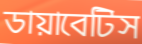
ডায়াবেটিস